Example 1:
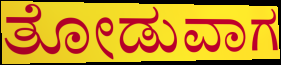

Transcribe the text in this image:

ತೋಡುವಾಗ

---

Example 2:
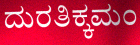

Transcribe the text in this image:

ದುರತಿಕ್ಕಮಂ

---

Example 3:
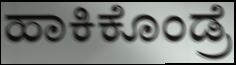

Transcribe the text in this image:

ಹಾಕಿಕೊಂಡ್ರೆ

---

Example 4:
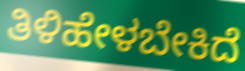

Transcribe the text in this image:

ತಿಳಿಹೇಳಬೇಕಿದೆ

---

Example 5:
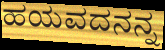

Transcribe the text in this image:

ಹಯವದನನ್ನ